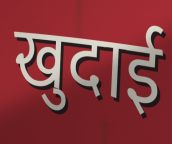
खुदाई